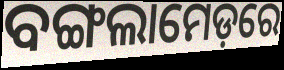
ବଙ୍ଗଲାମେଡ଼ରେ